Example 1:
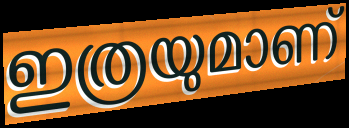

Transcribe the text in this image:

ഇത്രയുമാണ്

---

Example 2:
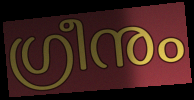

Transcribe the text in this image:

ഗ്രീനും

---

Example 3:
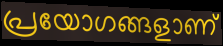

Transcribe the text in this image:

പ്രയോഗങ്ങളാണ്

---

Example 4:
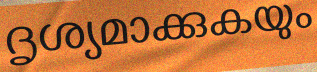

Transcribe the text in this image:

ദൃശ്യമാക്കുകയും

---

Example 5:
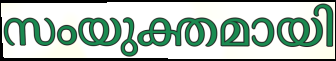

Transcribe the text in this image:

സംയുക്തമായി